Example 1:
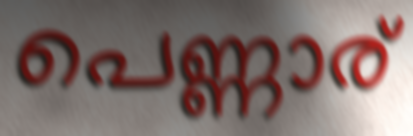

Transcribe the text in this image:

പെണ്ണാര്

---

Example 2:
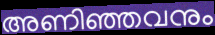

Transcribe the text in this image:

അണിഞ്ഞവനും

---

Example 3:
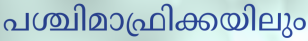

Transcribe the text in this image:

പശ്ചിമാഫ്രിക്കയിലും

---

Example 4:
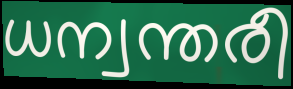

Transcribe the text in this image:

ധന്വന്തരീ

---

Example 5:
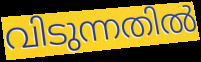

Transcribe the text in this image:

വിടുന്നതിൽ